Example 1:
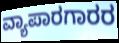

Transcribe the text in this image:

ವ್ಯಾಪಾರಗಾರರ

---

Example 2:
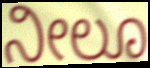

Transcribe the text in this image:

ನೀಲೂ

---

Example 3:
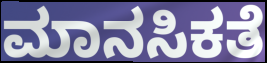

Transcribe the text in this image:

ಮಾನಸಿಕತೆ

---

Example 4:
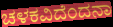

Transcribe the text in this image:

ಚಳಕವಿದೆಂದನಾ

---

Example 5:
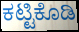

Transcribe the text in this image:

ಕಟ್ಟಿಕೊಡಿ